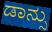
ಡಾನ್ಸು